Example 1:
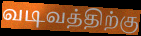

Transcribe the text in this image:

வடிவத்திற்கு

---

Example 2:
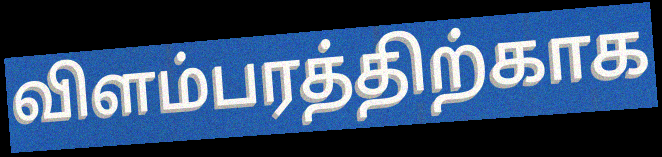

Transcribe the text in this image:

விளம்பரத்திற்காக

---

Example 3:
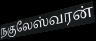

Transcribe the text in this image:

நகுலேஸ்வரன்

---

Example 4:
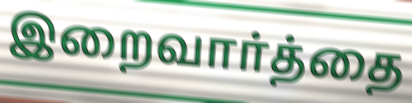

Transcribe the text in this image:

இறைவார்த்தை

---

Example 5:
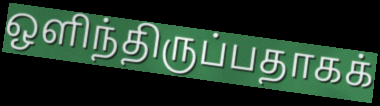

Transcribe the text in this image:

ஒளிந்திருப்பதாகக்